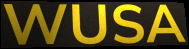
WUSA